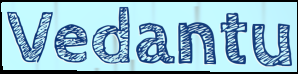
Vedantu